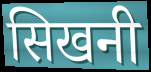
सिखनी